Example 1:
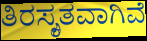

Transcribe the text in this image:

ತಿರಸ್ಕೃತವಾಗಿವೆ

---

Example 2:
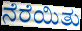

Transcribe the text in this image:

ನೆರೆಯಿತು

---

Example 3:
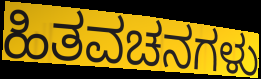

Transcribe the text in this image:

ಹಿತವಚನಗಳು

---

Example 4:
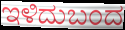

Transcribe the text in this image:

ಇಳಿದುಬಂದ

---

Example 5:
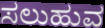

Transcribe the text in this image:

ಸಲುಹುವ